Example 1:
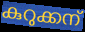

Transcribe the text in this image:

കുറുക്കന്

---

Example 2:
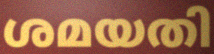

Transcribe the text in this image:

ശമയതി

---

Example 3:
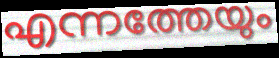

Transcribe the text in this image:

എന്നത്തേയും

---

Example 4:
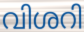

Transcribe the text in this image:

വിശറി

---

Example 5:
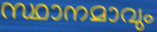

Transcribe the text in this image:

സ്ഥാനമാവും